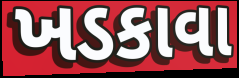
ખડકાવા